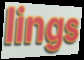
lings